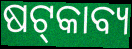
ଷଟ୍‌କାବ୍ୟ